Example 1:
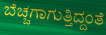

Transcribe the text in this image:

ಬೆಚ್ಚಗಾಗುತ್ತಿದ್ದಂತೆ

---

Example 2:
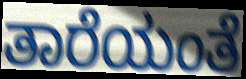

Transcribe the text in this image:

ತಾರೆಯಂತೆ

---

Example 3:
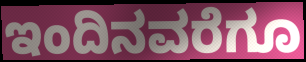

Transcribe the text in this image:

ಇಂದಿನವರೆಗೂ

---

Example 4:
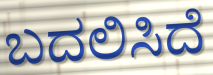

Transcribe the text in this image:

ಬದಲಿಸಿದೆ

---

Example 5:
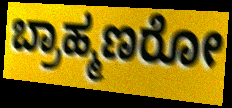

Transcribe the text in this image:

ಬ್ರಾಹ್ಮಣರೋ